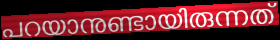
പറയാനുണ്ടായിരുന്നത്